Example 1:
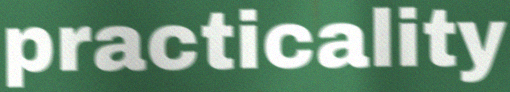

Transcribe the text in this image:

practicality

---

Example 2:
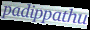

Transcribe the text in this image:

padippathu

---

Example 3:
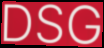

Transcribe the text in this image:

DSG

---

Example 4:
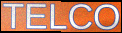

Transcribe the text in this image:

TELCO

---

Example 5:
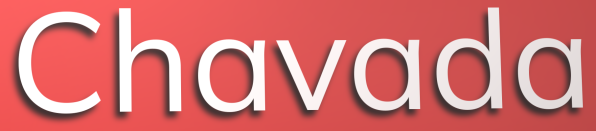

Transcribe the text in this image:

Chavada